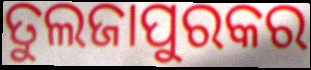
ତୁଲଜାପୁରକର